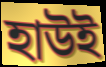
হাউই